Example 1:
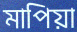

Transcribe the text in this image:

মাপিয়া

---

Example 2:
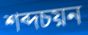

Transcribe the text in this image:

শব্দচয়ন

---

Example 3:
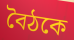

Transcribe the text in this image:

বৈঠকে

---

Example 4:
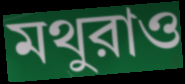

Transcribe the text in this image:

মথুরাও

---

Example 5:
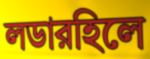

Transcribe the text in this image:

লডারহিলে